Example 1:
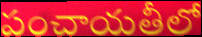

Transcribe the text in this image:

పంచాయతీలో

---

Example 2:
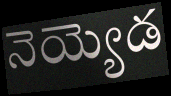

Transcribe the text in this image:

నెయ్యెడ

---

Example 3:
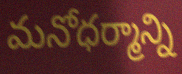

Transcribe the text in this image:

మనోధర్మాన్ని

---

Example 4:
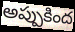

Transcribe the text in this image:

అప్పుకింద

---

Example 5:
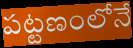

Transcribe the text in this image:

పట్టణంలోనే